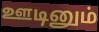
ஊடினும்